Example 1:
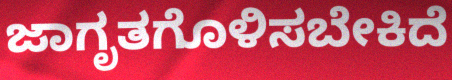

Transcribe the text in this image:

ಜಾಗೃತಗೊಳಿಸಬೇಕಿದೆ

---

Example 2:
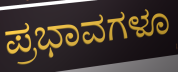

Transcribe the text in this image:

ಪ್ರಭಾವಗಳೂ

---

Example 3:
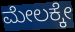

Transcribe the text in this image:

ಮೇಲಕ್ಕೇ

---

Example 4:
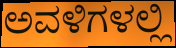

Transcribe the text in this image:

ಅವಳಿಗಳಲ್ಲಿ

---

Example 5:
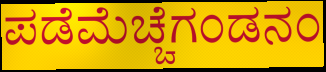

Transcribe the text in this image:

ಪಡೆಮೆಚ್ಚೆಗಂಡನಂ